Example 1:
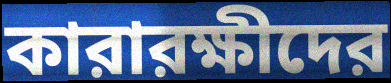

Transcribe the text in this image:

কারারক্ষীদের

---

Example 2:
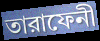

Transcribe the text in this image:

তারাফেনী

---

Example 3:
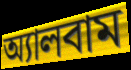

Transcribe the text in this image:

অ্যালবাম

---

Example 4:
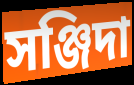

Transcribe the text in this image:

সঞ্জিদা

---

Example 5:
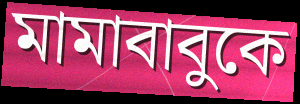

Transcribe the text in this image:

মামাবাবুকে